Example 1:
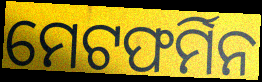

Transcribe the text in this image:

ମେଟଫର୍ମିନ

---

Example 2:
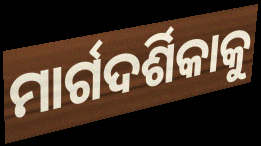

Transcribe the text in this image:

ମାର୍ଗଦର୍ଶିକାକୁ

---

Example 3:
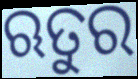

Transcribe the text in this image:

ଋତୁର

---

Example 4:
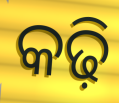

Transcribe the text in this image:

କଢ଼ି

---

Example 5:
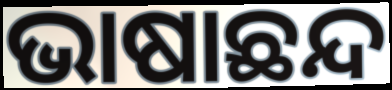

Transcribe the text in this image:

ଭାଷାଛନ୍ଦ